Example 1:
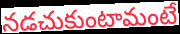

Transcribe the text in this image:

నడచుకుంటామంటే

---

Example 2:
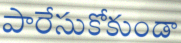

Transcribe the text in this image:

పారేసుకోకుండా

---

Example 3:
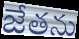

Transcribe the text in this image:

జేతను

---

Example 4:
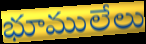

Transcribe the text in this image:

భూములేలు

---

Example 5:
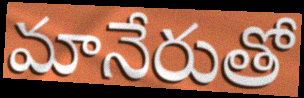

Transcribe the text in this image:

మానేరుతో